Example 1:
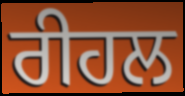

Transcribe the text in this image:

ਰੀਹਲ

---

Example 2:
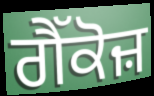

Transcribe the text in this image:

ਗੈੱਕੋਜ਼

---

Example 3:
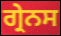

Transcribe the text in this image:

ਗ੍ਰੇਨਸ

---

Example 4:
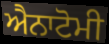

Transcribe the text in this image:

ਐਨਾਟੋਮੀ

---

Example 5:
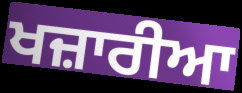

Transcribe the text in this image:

ਖਜ਼ਾਰੀਆ